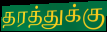
தரத்துக்கு